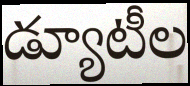
డ్యూటీల